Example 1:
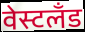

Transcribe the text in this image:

वेस्टलँड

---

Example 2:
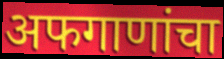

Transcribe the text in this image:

अफगाणांचा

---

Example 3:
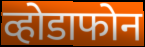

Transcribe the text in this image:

व्होडाफोन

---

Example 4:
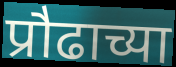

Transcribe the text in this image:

प्रौढाच्या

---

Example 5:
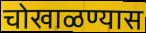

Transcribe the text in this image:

चोखाळण्यास